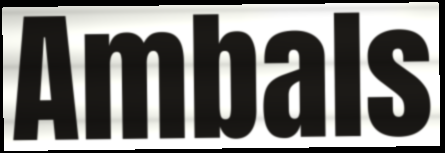
Ambals